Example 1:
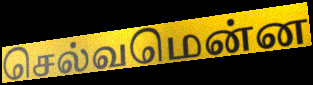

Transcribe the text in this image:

செல்வமென்ன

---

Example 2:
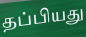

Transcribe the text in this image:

தப்பியது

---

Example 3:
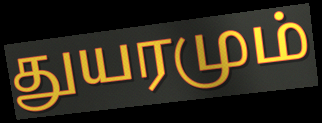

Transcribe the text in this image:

துயரமும்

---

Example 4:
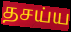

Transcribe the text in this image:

தசய்ய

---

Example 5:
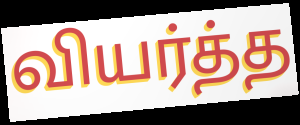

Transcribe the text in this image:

வியர்த்த